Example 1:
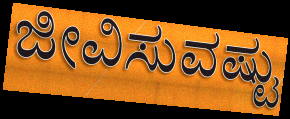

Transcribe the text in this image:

ಜೀವಿಸುವಷ್ಟು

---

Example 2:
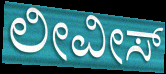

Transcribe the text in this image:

ಲೀವೀಸ್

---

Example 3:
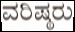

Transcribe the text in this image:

ವರಿಷ್ಠರು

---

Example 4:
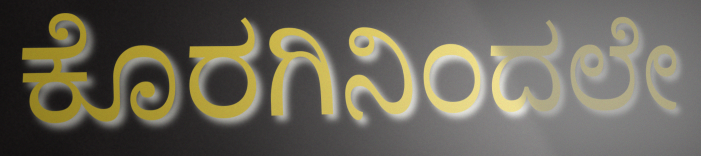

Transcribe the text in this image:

ಕೊರಗಿನಿಂದಲೇ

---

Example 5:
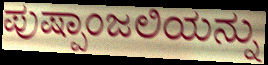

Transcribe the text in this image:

ಪುಷ್ಪಾಂಜಲಿಯನ್ನು